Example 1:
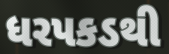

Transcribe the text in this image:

ધરપકડથી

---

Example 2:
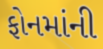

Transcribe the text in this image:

ફોનમાંની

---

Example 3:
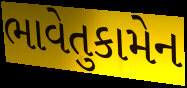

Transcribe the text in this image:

ભાવેતુકામેન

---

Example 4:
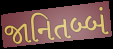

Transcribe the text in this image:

જાનિતબ્બં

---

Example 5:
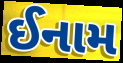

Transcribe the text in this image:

ઈનામ